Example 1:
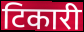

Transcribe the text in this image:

टिकारी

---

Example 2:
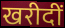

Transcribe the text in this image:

खरीदीं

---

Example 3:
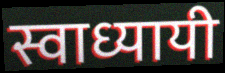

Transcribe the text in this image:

स्वाध्यायी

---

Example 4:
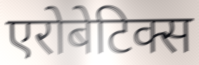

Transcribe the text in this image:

एरोबेटिक्स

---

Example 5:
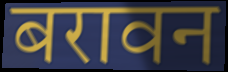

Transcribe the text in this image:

बरावन